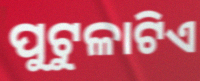
ପୁଟୁଳାଟିଏ